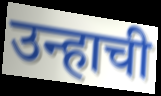
उन्हाची